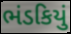
ભંડકિયું